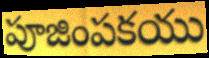
పూజింపకయు